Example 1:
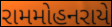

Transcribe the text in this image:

રામમોહનરાયે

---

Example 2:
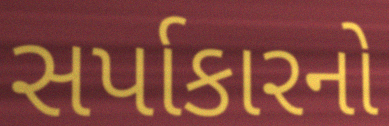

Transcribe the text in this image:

સર્પાકારનો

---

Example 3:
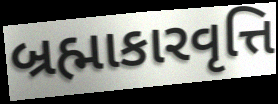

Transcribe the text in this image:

બ્રહ્માકારવૃત્તિ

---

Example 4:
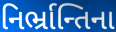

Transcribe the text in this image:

નિર્ભ્રાન્તિના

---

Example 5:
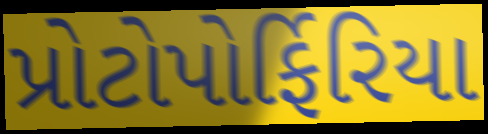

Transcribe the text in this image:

પ્રોટોપોર્ફિરિયા